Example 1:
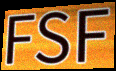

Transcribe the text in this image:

FSF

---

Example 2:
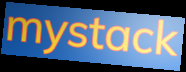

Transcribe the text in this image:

mystack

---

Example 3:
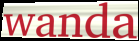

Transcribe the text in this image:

wanda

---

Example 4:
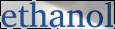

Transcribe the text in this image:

ethanol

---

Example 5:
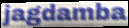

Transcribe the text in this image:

jagdamba